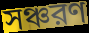
সঞ্চরণ